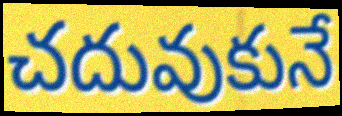
చదువుకునే